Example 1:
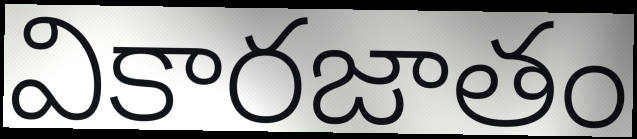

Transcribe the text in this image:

వికారజాతం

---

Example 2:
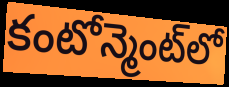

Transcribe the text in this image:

కంటోన్మెంట్‌లో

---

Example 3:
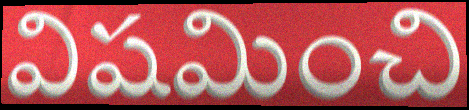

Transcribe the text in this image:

విషమించి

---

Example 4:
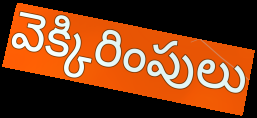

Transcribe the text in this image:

వెక్కిరింపులు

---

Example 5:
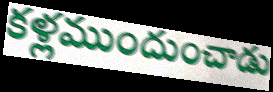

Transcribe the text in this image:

కళ్లముందుంచాడు